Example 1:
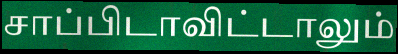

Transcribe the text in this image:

சாப்பிடாவிட்டாலும்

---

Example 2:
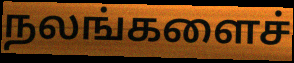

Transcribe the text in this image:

நலங்களைச்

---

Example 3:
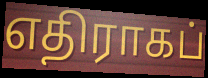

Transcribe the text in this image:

எதிராகப்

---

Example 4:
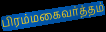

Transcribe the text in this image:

பிரம்மகைவர்த்தம்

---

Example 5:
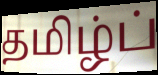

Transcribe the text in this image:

தமிழ்ப்